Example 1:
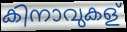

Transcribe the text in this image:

കിനാവുകള്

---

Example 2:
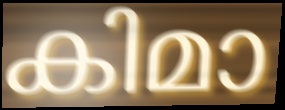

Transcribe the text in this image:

കിമാ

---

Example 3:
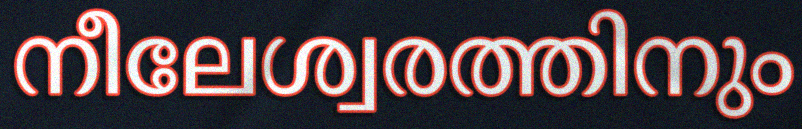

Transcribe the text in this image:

നീലേശ്വരത്തിനും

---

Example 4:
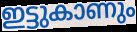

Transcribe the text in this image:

ഇട്ടുകാണും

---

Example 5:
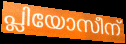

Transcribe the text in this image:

പ്ലിയോസീന്